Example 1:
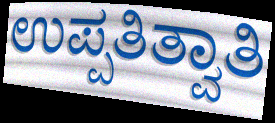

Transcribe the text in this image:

ಉಪ್ಪತಿತ್ವಾತಿ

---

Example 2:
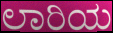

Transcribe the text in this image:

ಲಾರಿಯ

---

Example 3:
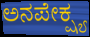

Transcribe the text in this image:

ಅನಪೇಕ್ಷ್ಯ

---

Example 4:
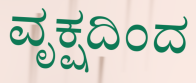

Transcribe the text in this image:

ವೃಕ್ಷದಿಂದ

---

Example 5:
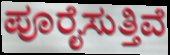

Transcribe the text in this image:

ಪೂರೈಸುತ್ತಿವೆ